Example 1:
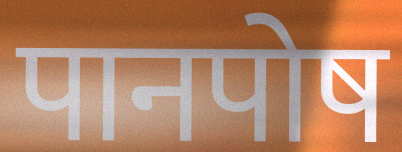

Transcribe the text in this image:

पानपोष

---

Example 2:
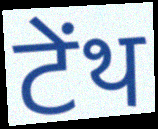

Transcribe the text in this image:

टेंथ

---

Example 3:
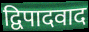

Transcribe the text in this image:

द्विपादवाद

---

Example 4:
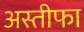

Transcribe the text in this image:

अस्तीफा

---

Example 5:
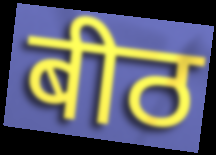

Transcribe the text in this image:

बीठ